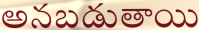
అనబడుతాయి